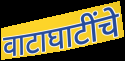
वाटाघाटींचे